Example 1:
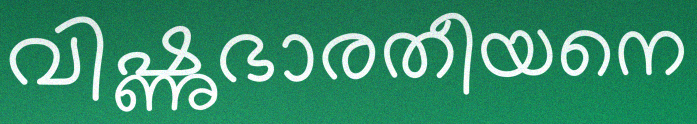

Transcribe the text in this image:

വിഷ്ണുഭാരതീയനെ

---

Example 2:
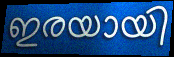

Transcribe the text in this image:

ഇരയായി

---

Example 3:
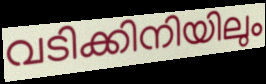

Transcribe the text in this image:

വടിക്കിനിയിലും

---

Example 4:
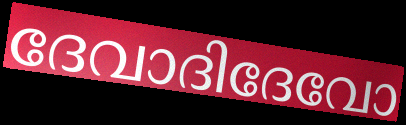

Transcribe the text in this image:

ദേവാദിദേവോ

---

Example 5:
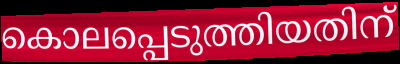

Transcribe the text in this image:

കൊലപ്പെടുത്തിയതിന്